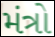
મંત્રો